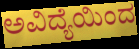
ಅವಿದ್ಯೆಯಿಂದ